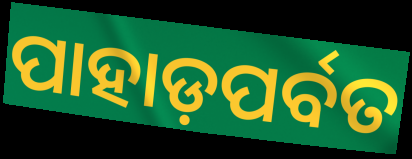
ପାହାଡ଼ପର୍ବତ